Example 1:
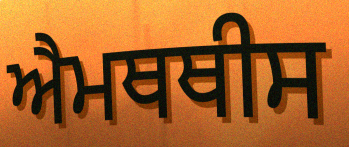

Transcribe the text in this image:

ਐਮਥਥੀਸ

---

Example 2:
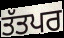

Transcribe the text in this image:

ਤੱਤਪਰ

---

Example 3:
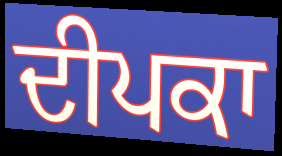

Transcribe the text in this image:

ਦੀਪਕਾ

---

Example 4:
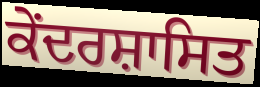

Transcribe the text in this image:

ਕੇਂਦਰਸ਼ਾਸਿਤ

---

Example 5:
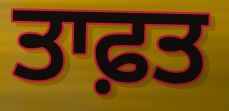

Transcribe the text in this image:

ਤਾਫ਼ਤ